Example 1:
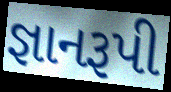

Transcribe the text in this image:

જ્ઞાનરૂપી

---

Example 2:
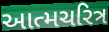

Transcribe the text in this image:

આત્મચરિત્ર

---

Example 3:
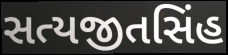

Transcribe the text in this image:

સત્યજીતસિંહ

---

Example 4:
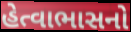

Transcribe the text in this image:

હેત્વાભાસનો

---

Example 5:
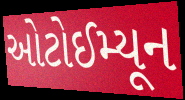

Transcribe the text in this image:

ઓટોઈમ્યૂન